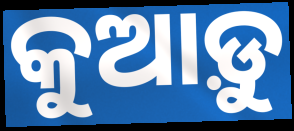
କୁଆଡ଼ୁ